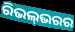
ରିଭଲ୍‍ଭରର